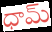
ధామ్